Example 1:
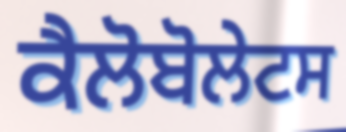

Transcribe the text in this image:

ਕੈਲੋਬੋਲੇਟਸ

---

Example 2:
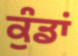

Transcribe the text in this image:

ਕੁੰਡਾਂ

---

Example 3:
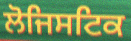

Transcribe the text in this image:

ਲੋਜਿਸਟਿਕ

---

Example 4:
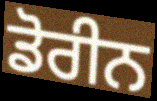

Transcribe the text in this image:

ਡੋਰੀਨ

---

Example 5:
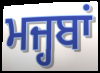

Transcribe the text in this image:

ਮਜ੍ਹਬਾਂ